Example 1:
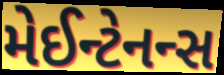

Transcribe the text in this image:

મેઈન્ટેનન્સ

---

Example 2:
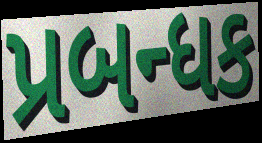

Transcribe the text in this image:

પ્રબન્ધક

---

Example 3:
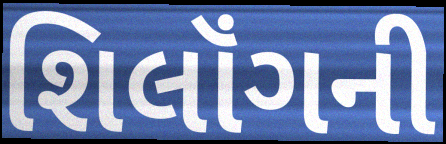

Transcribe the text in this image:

શિલૉંગની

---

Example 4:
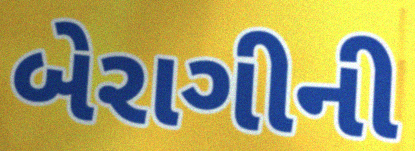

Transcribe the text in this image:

બેરાગીની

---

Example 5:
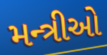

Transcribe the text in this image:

મન્ત્રીઓ